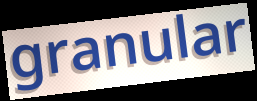
granular